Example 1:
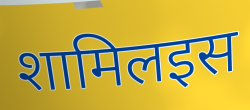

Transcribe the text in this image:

शामिलइस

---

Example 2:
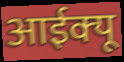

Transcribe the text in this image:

आईक्‍यू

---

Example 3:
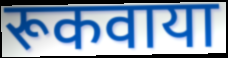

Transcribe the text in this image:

रूकवाया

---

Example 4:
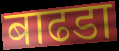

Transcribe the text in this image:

बाढडा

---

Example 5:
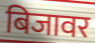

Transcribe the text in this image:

बिजावर